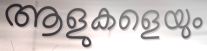
ആളുകളെയും